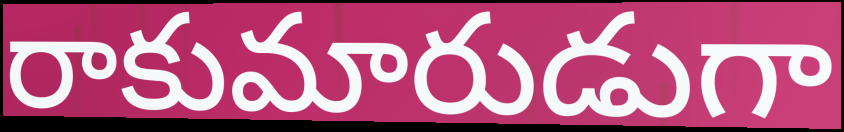
రాకుమారుడుగా